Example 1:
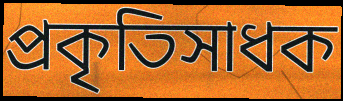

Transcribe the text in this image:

প্রকৃতিসাধক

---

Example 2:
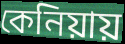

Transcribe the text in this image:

কেনিয়ায়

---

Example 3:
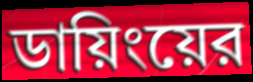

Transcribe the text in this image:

ডায়িংয়ের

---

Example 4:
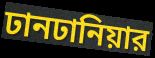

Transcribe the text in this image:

ঢানঢানিয়ার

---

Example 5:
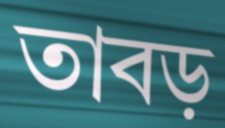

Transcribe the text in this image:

তাবড়